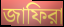
জাফিরা